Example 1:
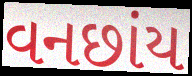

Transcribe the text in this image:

વનછાંય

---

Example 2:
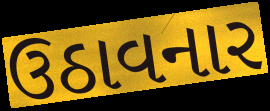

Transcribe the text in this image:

ઉઠાવનાર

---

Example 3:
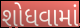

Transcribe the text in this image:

શોધવામાં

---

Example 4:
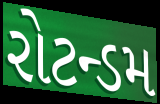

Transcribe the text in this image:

રોટન્ડમ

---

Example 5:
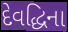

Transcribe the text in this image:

દેવદ્ધિના